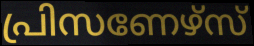
പ്രിസണേഴ്സ്